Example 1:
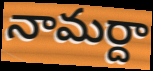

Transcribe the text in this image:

నామర్దా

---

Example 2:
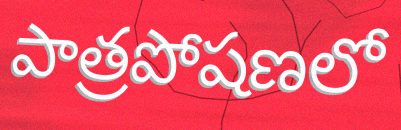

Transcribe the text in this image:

పాత్రపోషణలో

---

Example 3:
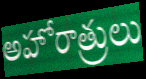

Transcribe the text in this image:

అహోరాత్రులు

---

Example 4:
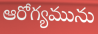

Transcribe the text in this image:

ఆరోగ్యమును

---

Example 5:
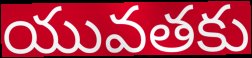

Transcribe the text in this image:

యువతకు